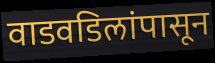
वाडवडिलांपासून